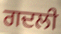
ਗਦਲੀ